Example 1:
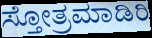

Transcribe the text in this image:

ಸ್ತೋತ್ರಮಾಡಿರಿ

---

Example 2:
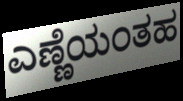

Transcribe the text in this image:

ಎಣ್ಣೆಯಂತಹ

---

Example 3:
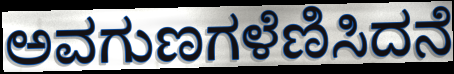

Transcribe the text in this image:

ಅವಗುಣಗಳೆಣಿಸಿದನೆ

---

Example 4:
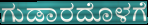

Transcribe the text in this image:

ಗುಡಾರದೊಳಗೆ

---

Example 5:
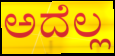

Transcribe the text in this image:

ಅದೆಲ್ಲ